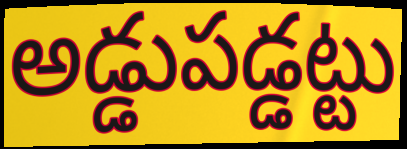
అడ్డుపడ్డట్టు